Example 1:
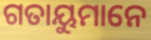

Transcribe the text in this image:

ଗତାୟୁମାନେ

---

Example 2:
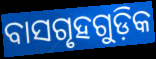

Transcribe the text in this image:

ବାସଗୃହଗୁଡ଼ିକ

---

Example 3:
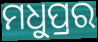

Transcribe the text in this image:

ମଧୁପ୍ରର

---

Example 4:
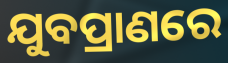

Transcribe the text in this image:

ଯୁବପ୍ରାଣରେ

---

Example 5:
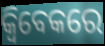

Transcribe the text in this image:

କ୍ୱିବେକରେ